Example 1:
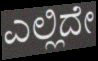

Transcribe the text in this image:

ಎಲ್ಲಿದೇ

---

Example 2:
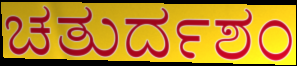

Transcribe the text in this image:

ಚತುರ್ದಶಂ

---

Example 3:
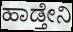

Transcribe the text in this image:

ಹಾಡ್ತೇನಿ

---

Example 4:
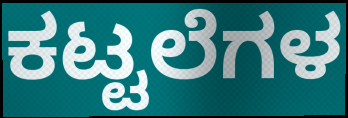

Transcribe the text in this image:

ಕಟ್ಟಲೆಗಳ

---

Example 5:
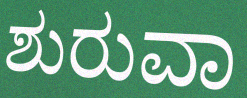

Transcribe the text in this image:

ಶುರುವಾ